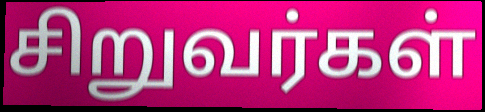
சிறுவர்கள்